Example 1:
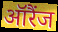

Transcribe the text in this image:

ऑरैंज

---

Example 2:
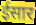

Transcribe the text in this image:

ईसार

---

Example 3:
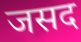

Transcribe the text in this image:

जसद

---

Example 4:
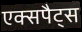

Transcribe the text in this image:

एक्सपैट्स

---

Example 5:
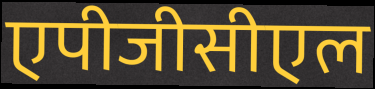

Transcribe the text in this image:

एपीजीसीएल